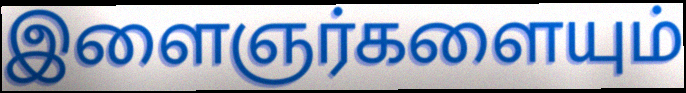
இளைஞர்களையும்